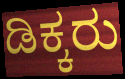
ಡಿಕ್ಕರು